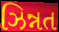
ઝિન્નત